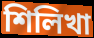
শিলিখা